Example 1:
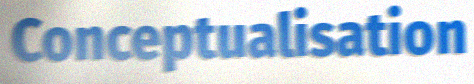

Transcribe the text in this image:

Conceptualisation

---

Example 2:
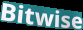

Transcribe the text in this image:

Bitwise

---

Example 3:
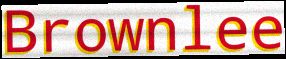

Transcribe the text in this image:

Brownlee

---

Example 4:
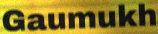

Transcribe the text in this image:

Gaumukh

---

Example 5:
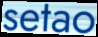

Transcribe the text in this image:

setao